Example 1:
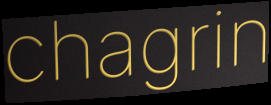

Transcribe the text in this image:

chagrin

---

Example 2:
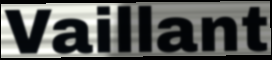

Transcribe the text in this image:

Vaillant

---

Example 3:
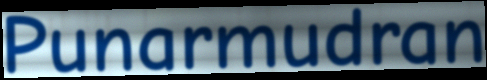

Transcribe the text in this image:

Punarmudran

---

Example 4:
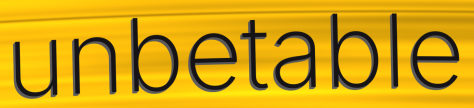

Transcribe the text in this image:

unbetable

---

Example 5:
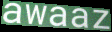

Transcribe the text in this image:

awaaz